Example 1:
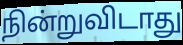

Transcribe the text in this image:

நின்றுவிடாது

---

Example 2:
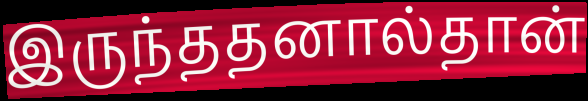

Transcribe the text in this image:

இருந்ததனால்தான்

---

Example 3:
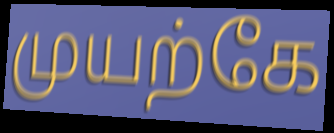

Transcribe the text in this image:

முயற்கே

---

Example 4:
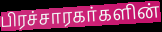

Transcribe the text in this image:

பிரச்சாரகர்களின்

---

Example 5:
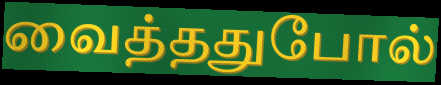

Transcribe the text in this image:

வைத்ததுபோல்